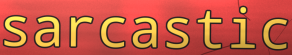
sarcastic